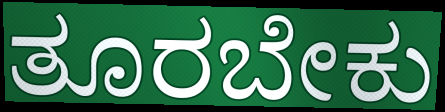
ತೂರಬೇಕು